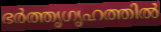
ഭർത്തൃഗൃഹത്തിൽ